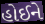
હોઈને